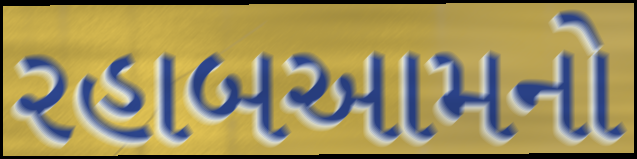
રહાબઆમનો